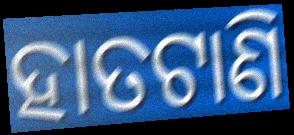
ହାତଟାଣି